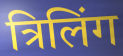
त्रिलिंग